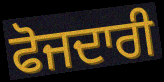
ਫੋਜਦਾਰੀ